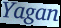
Yagan